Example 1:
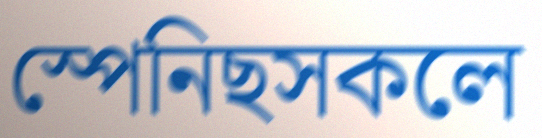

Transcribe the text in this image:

স্পেনিছসকলে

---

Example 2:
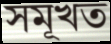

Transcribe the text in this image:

সমূখত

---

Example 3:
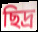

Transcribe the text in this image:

ছিদ্ৰ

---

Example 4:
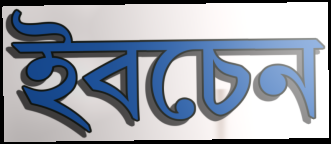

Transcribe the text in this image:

ইবচেন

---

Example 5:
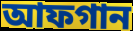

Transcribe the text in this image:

আফগান